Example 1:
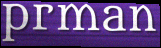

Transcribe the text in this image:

prman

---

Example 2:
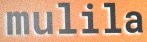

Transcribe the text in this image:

mulila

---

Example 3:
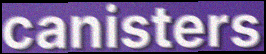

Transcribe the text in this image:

canisters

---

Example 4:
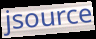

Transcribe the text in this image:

jsource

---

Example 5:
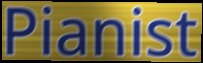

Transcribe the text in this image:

Pianist